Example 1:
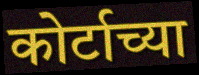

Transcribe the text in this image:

कोर्टाच्या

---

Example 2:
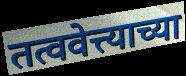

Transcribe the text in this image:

तत्ववेत्त्याच्या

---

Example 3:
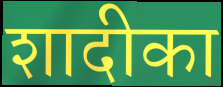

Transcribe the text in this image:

शादीका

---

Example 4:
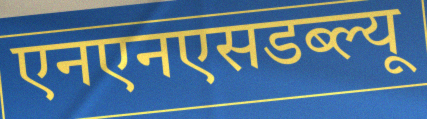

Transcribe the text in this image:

एनएनएसडब्ल्यू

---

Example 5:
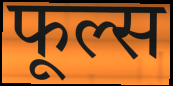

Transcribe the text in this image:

फूल्स